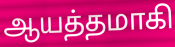
ஆயத்தமாகி